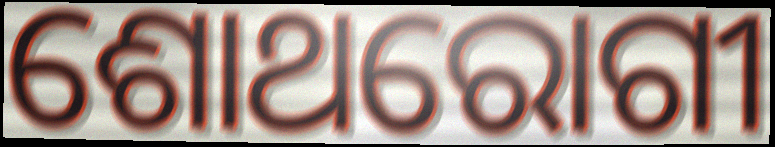
ଶୋଥରୋଗୀ